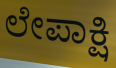
ಲೇಪಾಕ್ಷಿ